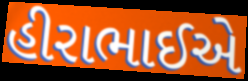
હીરાભાઈએ